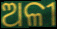
ଅଳୀ